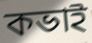
কভাই